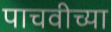
पाचवीच्या